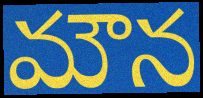
మౌన